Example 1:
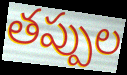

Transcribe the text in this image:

తప్పుల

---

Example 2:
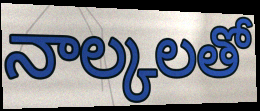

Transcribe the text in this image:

నాల్కలతో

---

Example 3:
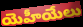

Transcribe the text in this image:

యెహీయేలు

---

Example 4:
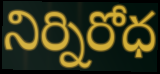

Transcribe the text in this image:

నిర్నిరోధ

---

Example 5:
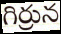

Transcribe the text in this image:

గిర్రున